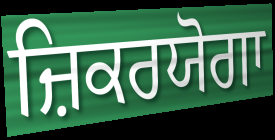
ਜ਼ਿਕਰਯੋਗਾ